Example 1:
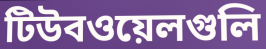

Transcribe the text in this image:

টিউবওয়েলগুলি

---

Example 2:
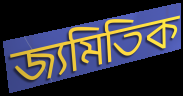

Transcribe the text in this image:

জ্যমিতিক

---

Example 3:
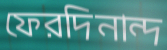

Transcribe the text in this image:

ফেরদিনান্দ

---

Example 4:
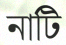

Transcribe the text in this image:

নাটি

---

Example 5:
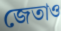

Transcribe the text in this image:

জেতাও